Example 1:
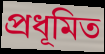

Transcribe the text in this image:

প্রধূমিত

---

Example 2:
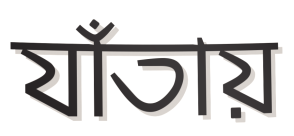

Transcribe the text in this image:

যাঁতায়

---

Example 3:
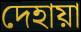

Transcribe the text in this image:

দেহায়া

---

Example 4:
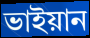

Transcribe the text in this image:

ভাইয়ান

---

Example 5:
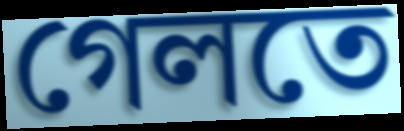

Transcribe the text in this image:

গেলতে